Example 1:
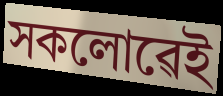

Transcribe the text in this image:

সকলোৱেই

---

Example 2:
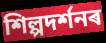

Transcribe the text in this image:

শিল্পদৰ্শনৰ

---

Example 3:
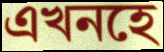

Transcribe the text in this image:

এখনহে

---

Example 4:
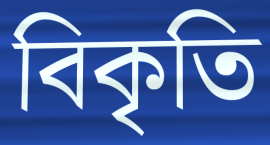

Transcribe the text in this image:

বিকৃতি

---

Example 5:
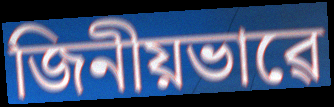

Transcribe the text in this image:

জিনীয়ভাৱে